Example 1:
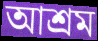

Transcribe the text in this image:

আশ্ৰম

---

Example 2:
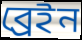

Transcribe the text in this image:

ব্ৰেইন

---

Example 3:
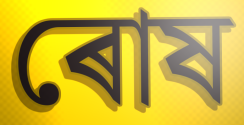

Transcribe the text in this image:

ৰোষ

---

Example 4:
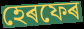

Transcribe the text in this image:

হেৰফেৰ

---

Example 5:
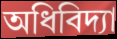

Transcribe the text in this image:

অধিবিদ্যা